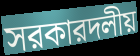
সরকারদলীয়